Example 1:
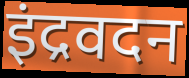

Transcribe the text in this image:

इंद्रवदन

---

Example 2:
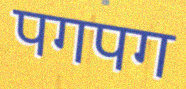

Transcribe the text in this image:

पगपग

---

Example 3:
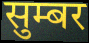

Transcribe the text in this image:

सुम्बर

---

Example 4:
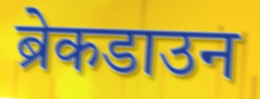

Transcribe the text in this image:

ब्रेकडाउन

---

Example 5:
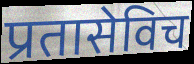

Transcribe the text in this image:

प्रतासेविच